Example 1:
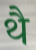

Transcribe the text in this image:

थै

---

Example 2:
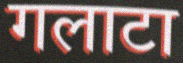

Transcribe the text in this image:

गलाटा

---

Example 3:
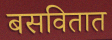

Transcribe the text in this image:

बसवितात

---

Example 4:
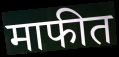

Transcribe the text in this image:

माफीत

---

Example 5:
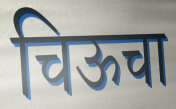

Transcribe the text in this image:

चिऊचा